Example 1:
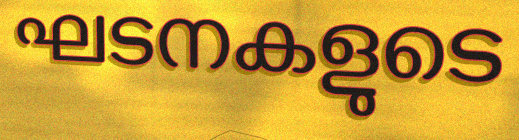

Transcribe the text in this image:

ഘടനകളുടെ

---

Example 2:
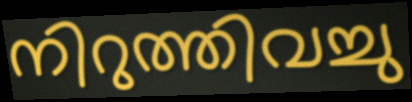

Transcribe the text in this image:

നിറുത്തിവച്ചു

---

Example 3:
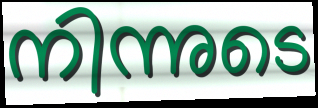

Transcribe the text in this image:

നിന്നുടെ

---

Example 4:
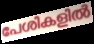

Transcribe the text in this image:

പേശികളിൽ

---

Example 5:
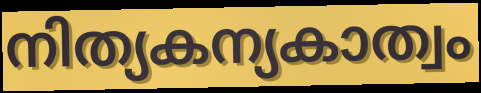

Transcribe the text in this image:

നിത്യകന്യകാത്വം